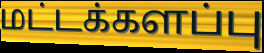
மட்டக்களப்பு